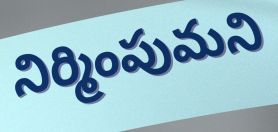
నిర్మింపుమని